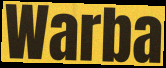
Warba